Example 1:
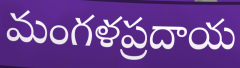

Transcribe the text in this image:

మంగళప్రదాయ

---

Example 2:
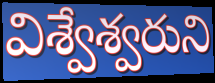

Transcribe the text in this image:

విశ్వేశ్వరుని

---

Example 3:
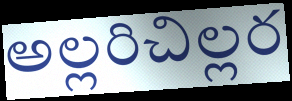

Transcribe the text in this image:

అల్లరిచిల్లర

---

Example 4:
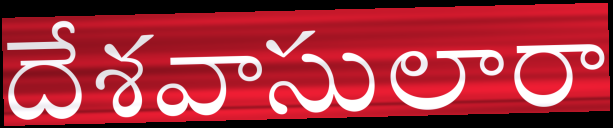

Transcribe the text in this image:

దేశవాసులారా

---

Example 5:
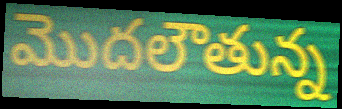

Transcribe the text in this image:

మొదలౌతున్న